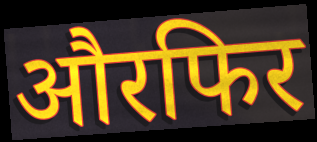
औरफिर